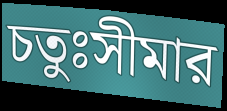
চতুঃসীমার